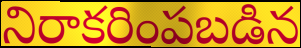
నిరాకరింపబడిన